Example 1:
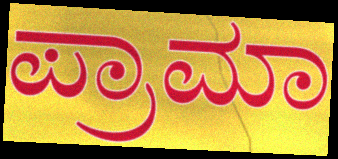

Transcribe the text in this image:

ಪ್ರಾಮಾ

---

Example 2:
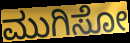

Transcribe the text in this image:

ಮುಗಿಸೋ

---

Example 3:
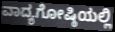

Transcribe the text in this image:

ವಾದ್ಯಗೋಷ್ಠಿಯಲ್ಲಿ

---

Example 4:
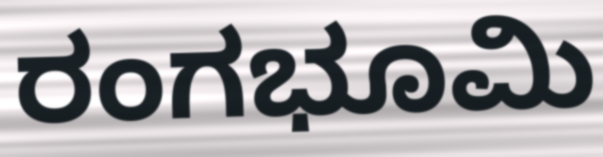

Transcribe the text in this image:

ರಂಗಭೂಮಿ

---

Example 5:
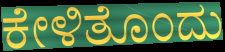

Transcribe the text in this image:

ಕೇಳಿತೊಂದು